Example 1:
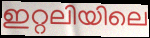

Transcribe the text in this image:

ഇറ്റലിയിലെ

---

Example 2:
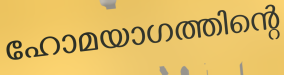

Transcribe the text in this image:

ഹോമയാഗത്തിന്റെ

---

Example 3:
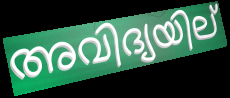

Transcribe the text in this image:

അവിദ്യയില്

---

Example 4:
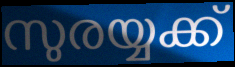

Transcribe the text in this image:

സുരയ്യക്ക്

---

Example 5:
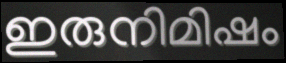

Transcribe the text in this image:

ഇരുനിമിഷം